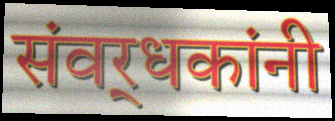
संवर्धकांनी